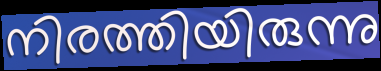
നിരത്തിയിരുന്നു